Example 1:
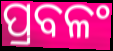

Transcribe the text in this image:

ପ୍ରବଳଂ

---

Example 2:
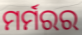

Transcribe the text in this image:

ମର୍ମରର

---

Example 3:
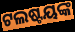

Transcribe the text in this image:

ଟଲଷ୍ଟୟଙ୍କ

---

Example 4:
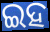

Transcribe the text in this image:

ଇହ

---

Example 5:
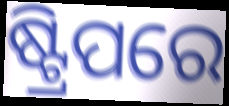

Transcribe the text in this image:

ଷ୍ଟ୍ରିପରେ